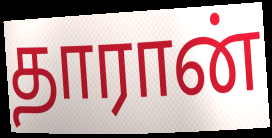
தாரான்